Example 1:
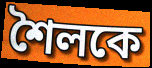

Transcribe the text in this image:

শৈলকে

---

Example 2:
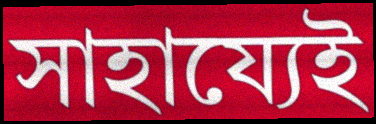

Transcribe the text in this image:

সাহায্যেই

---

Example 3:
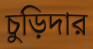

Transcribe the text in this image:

চুড়িদার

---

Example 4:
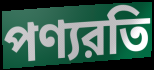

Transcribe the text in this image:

পণ্যরতি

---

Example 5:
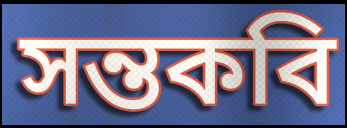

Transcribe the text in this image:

সন্তকবি